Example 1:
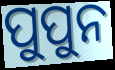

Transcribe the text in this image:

ପୁପୁନ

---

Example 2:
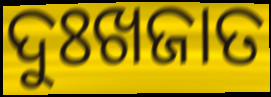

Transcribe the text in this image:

ଦୁଃଖଜାତ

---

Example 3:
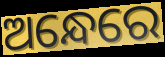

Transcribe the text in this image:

ଅନ୍ଧେରେ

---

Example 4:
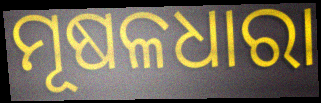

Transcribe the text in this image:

ମୂଷଳଧାରା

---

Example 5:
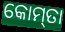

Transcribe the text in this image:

କୋମ୍‌ତା